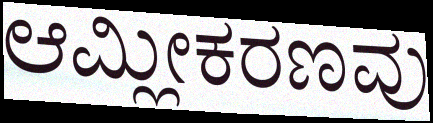
ಆಮ್ಲೀಕರಣವು